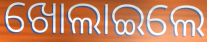
ଖୋଲାଇଲେ